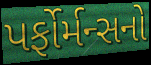
પર્ફોર્મન્સનો